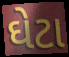
ઘેટા